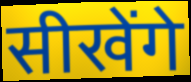
सीखेंगे